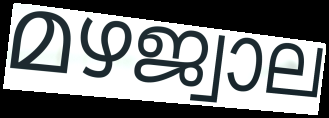
മഴജ്വാല